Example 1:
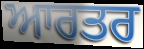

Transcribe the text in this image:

ਆਰਤਰ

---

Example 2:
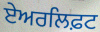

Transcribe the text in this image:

ਏਅਰਲਿਫ਼ਟ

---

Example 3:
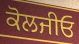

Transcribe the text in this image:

ਕੋਲਜੀਓ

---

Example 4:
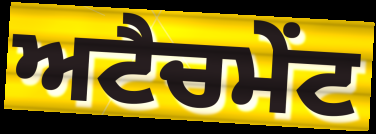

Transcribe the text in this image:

ਅਟੈਚਮੇਂਟ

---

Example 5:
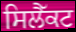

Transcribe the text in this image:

ਸਿਲੈੱਕਟ